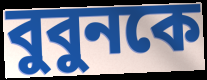
বুবুনকে